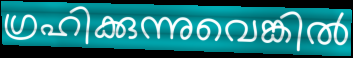
ഗ്രഹിക്കുന്നുവെങ്കിൽ